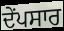
ਦੇਂਪਸਾਰ